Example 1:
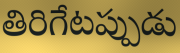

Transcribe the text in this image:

తిరిగేటప్పుడు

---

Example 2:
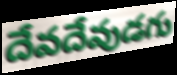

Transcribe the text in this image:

దేవదేవుడగు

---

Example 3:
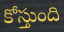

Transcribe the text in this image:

కోస్తుంది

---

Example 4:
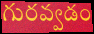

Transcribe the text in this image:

గురవ్వడం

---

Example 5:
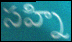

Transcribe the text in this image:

సహ్ని